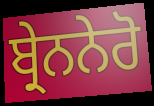
ਬ੍ਰੇਨਨੇਰੋ